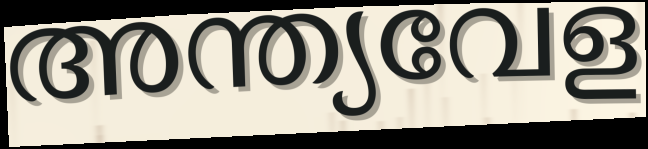
അന്ത്യവേള